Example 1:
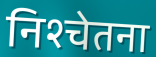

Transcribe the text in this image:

निश्चेतना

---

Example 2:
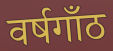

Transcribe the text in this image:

वर्षगाँठ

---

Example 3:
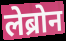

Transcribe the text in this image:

लेब्रोन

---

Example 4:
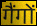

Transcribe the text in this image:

गैंगों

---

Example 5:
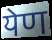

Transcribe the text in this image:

येण